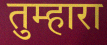
तुम्हारा